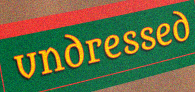
undressed